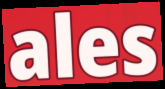
ales